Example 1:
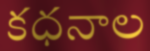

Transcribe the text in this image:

కధనాల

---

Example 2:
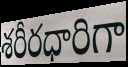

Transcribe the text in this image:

శరీరధారిగా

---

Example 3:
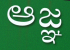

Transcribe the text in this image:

ఆజ్ఞ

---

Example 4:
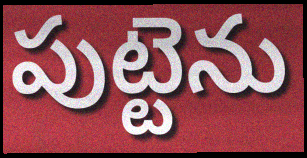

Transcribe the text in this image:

పుట్టెను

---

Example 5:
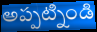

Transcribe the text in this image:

అప్పట్నిండి